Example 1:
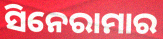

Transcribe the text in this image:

ସିନେରାମାର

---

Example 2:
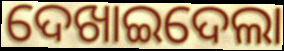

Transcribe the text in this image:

ଦେଖାଇଦେଲା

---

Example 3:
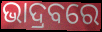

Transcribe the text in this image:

ଭାଦ୍ରବରେ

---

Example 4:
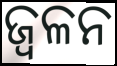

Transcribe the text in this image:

ଜ୍ୱଳନ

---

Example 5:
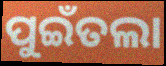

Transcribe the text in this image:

ପୁଇଁତଲା